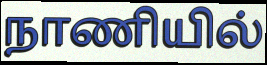
நாணியில்